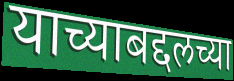
याच्याबद्दलच्या